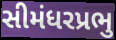
સીમંધરપ્રભુ